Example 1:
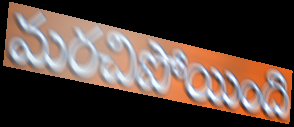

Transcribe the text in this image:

మరచిపోయింది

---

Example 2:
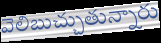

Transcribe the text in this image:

వెలిబుచ్చుతున్నారు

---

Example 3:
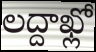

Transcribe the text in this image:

లద్దాఖ్లో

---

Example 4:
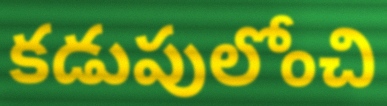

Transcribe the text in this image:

కడుపులోంచి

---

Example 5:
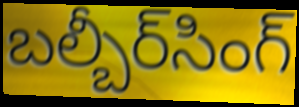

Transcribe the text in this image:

బల్బీర్‌సింగ్